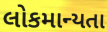
લોકમાન્યતા